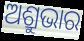
ଅଶ୍ରୁଭାର